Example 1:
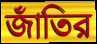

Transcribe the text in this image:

জাঁতির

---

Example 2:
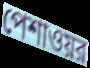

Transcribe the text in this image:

পেশাওয়র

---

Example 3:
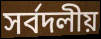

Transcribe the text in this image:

সর্বদলীয়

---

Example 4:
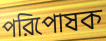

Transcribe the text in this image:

পরিপোষক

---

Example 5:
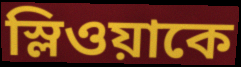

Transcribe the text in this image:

স্লিওয়াকে